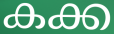
കക്ക